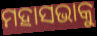
ମହାସଭାକୁ